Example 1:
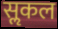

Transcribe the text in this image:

सॢकल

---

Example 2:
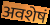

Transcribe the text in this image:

अवशेषं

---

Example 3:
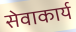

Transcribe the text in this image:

सेवाकार्य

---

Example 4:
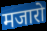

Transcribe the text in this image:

मजारो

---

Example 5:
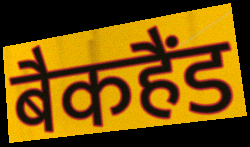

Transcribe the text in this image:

बैकहैंड